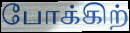
போக்கிற்